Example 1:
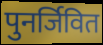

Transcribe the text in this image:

पुनर्जिवित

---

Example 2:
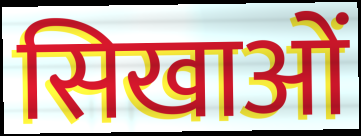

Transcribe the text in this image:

सिखाओं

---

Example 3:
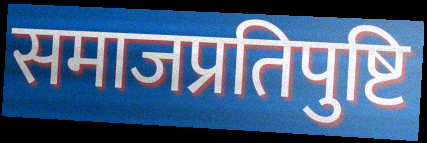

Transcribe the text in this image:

समाजप्रतिपुष्टि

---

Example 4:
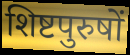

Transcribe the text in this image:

शिष्टपुरुषों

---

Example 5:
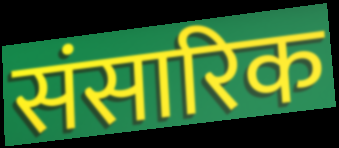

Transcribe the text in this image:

संसारिक